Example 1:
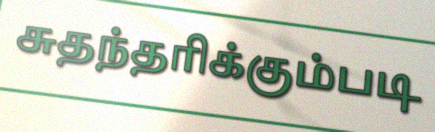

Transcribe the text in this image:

சுதந்தரிக்கும்படி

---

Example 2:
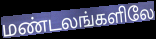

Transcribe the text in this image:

மண்டலங்களிலே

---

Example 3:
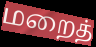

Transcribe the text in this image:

மறைத்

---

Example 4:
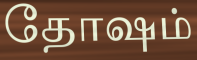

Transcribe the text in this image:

தோஷம்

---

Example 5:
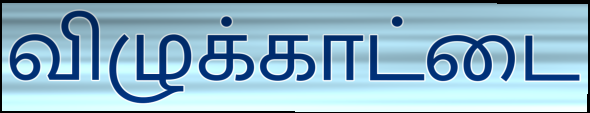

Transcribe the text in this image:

விழுக்காட்டை